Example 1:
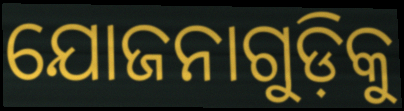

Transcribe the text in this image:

ଯୋଜନାଗୁଡ଼ିକୁ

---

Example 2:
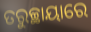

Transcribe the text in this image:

ତରୁଚ୍ଛାୟାରେ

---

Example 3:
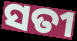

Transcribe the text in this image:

ସତୀ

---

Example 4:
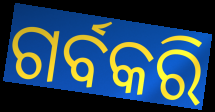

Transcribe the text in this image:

ଗର୍ବକରି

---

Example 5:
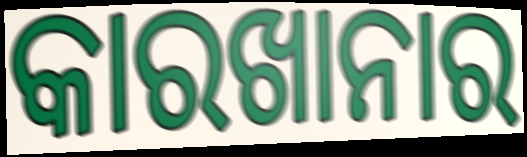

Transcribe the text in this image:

କାରଖାନାର